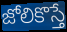
జోలికొస్తే